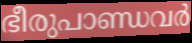
ഭീരുപാണ്ഡവർ